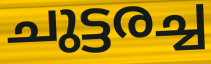
ചുട്ടരച്ച